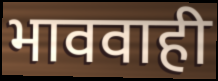
भाववाही